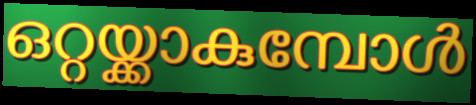
ഒറ്റയ്ക്കാകുമ്പോൾ